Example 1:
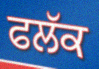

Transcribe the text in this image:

ਫਲੱਕ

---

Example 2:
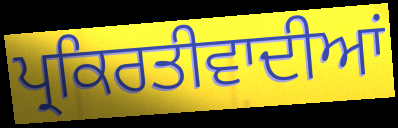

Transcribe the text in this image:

ਪ੍ਰਕਿਰਤੀਵਾਦੀਆਂ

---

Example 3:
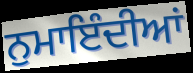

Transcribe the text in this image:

ਨੁਮਾਇੰਦੀਆਂ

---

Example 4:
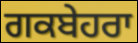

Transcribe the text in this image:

ਗਕਬੇਹਰਾ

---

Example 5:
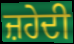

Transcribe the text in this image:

ਜ਼ਹੇਦੀ